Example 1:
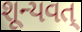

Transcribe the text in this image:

શૂન્યવત્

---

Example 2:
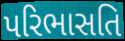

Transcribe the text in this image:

પરિભાસતિ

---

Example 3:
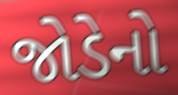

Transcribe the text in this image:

જોડેનો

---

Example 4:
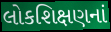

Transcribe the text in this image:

લોકશિક્ષણનાં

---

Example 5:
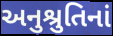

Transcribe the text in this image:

અનુશ્રુતિનાં